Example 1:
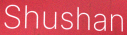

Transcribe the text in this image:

Shushan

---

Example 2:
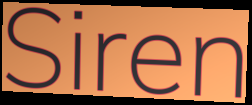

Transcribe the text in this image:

Siren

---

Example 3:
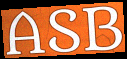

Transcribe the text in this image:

ASB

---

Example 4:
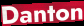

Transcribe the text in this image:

Danton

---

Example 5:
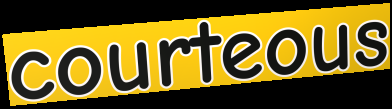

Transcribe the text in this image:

courteous